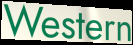
Western